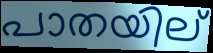
പാതയില്